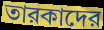
তারকাদের